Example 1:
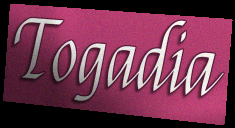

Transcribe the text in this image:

Togadia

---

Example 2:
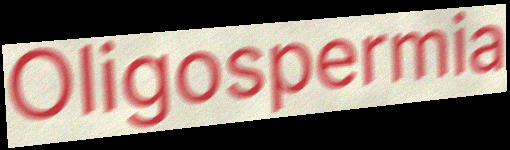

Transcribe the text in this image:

Oligospermia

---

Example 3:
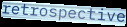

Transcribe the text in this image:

retrospective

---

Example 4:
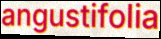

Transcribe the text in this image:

angustifolia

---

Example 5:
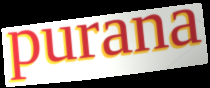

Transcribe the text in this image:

purana